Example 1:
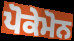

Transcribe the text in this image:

ਪੋਕੇਮੋਨ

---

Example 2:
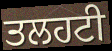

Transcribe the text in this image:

ਤਲਹਟੀ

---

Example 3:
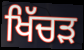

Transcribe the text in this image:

ਖਿੱਚੜ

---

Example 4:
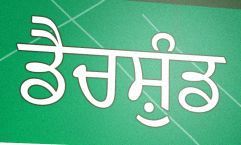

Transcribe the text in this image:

ਡੈਚਸ਼ੁੰਡ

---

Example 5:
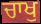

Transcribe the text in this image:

ਚਾਖੁ